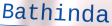
Bathinda